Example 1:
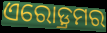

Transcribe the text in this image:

ଏରୋଡ଼୍ରମର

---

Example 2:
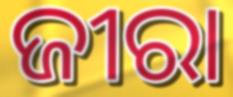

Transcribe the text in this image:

ଜୀରା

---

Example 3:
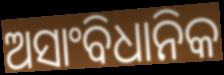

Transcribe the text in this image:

ଅସାଂବିଧାନିକ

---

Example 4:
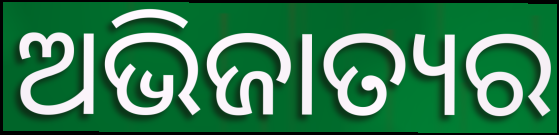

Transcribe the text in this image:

ଅଭିଜାତ୍ୟର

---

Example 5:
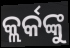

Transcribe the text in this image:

କ୍ଲର୍କଙ୍କୁ